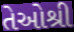
તેઓશ્રી